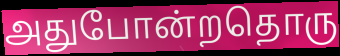
அதுபோன்றதொரு